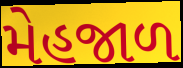
મેહજાળ